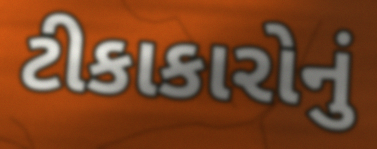
ટીકાકારોનું